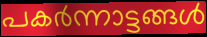
പകർന്നാട്ടങ്ങൾ